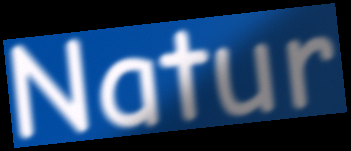
Natur